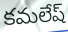
కమలేష్